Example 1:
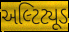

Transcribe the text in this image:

અલ્ટિટ્યૂડ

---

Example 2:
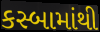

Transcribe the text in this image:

કસ્બામાંથી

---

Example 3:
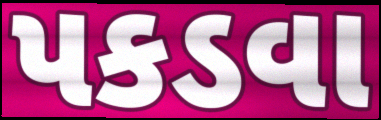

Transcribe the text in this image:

પકડવા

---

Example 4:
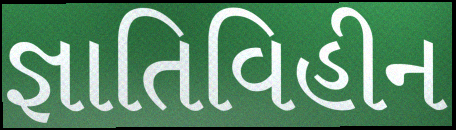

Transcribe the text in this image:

જ્ઞાતિવિહીન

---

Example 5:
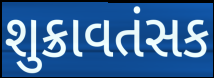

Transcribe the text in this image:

શુક્રાવતંસક